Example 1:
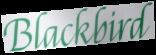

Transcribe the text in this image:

Blackbird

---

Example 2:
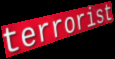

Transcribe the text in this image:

terrorist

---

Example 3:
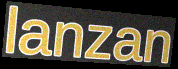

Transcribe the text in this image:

lanzan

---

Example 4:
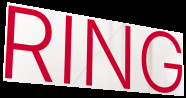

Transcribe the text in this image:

RING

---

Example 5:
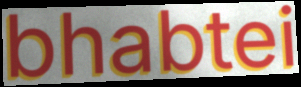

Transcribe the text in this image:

bhabtei